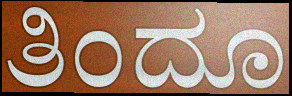
ತಿಂದೂ